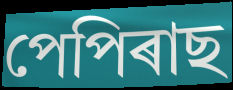
পেপিৰাছ